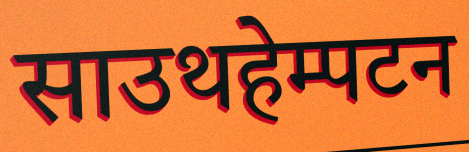
साउथहेम्पटन